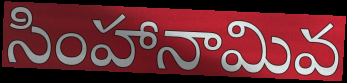
సింహానామివ